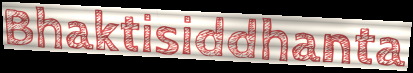
Bhaktisiddhanta